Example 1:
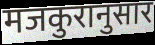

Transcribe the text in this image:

मजकुरानुसार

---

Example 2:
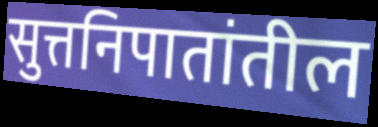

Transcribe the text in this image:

सुत्तनिपातांतील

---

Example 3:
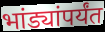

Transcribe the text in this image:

भांड्यांपर्यंत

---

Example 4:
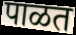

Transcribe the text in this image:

पाळत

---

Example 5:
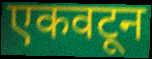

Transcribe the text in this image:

एकवटून